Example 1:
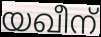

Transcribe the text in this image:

യഖീന്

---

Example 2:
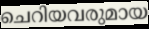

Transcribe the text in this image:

ചെറിയവരുമായ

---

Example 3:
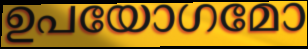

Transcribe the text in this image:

ഉപയോഗമോ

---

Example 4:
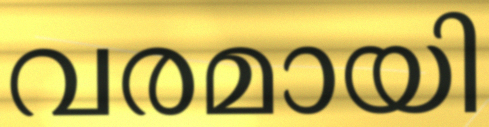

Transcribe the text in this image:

വരമായി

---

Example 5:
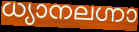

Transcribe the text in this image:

ധ്യാനലഗ്നാ